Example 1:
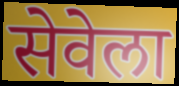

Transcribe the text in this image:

सेवेला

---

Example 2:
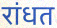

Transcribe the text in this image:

रांधत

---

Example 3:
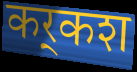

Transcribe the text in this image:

कर्कश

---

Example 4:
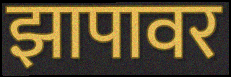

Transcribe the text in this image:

झापावर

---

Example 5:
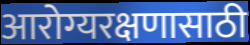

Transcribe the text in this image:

आरोग्यरक्षणासाठी